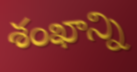
శంఖాన్ని